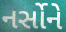
નર્સોને